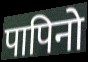
पापिनो